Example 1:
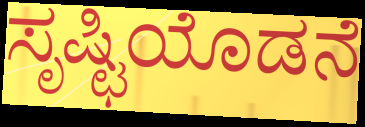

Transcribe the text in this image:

ಸೃಷ್ಟಿಯೊಡನೆ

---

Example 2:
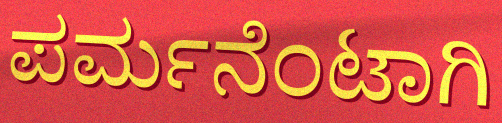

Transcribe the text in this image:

ಪರ್ಮನೆಂಟಾಗಿ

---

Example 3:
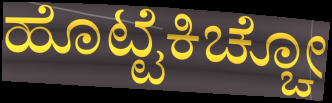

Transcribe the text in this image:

ಹೊಟ್ಟೆಕಿಚ್ಚೋ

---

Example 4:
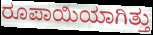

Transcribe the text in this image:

ರೂಪಾಯಿಯಾಗಿತ್ತು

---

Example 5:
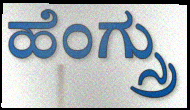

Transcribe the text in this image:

ಹೆಂಗ್ಸ್ರು